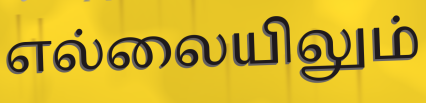
எல்லையிலும்